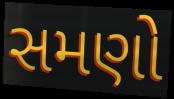
સમણો